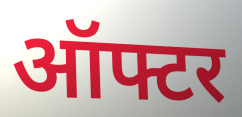
ऑफ्टर